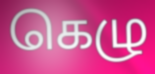
கெழு